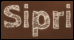
Sipri